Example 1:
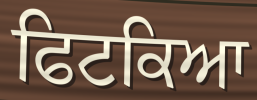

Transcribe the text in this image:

ਫਿਟਕਿਆ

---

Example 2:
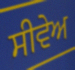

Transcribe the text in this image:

ਸੀਵੇਅ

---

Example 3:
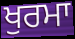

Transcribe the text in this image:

ਖੁਰਮਾ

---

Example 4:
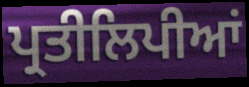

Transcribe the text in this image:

ਪ੍ਰਤੀਲਿਪੀਆਂ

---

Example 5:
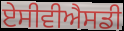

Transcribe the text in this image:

ਏਸੀਵੀਐਸਡੀ